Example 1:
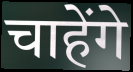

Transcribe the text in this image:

चाहेंगे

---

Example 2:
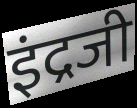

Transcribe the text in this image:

इंद्रजी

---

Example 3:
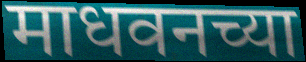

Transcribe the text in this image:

माधवनच्या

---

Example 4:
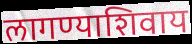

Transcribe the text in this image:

लागण्याशिवाय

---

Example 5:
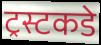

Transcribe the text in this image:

ट्रस्टकडे